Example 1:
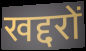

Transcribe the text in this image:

खद्दरों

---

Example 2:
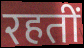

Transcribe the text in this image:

रहतीं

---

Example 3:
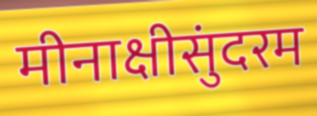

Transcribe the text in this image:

मीनाक्षीसुंदरम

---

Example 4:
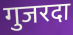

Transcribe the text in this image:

गुजरदा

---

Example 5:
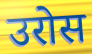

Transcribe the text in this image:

उरोस